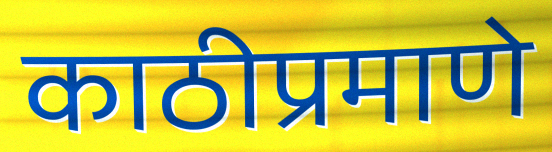
काठीप्रमाणे